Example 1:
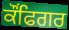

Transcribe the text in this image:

ਕੌਂਫਿਗਰ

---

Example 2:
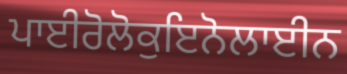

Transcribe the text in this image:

ਪਾਈਰੋਲੋਕੁਇਨੋਲਾਈਨ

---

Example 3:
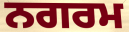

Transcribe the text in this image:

ਨਗਰਮ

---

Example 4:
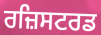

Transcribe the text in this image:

ਰਜ਼ਿਸਟਰਡ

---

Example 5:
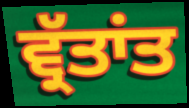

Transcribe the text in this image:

ਵ੍ਰੱਤਾਂਤ